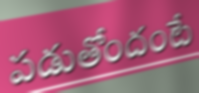
పడుతోందంటే